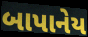
બાપાનેય